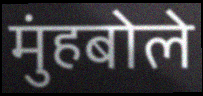
मुंहबोले